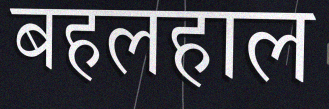
बहलहाल